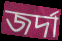
জর্দা